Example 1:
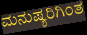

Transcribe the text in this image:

ಮನುಷ್ಯರಿಗಿಂತ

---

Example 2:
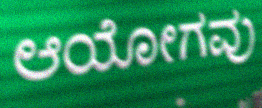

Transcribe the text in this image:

ಆಯೋಗವು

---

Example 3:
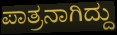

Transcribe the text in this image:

ಪಾತ್ರನಾಗಿದ್ದು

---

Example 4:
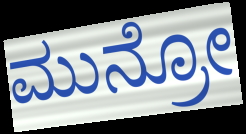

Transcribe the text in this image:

ಮುನ್ರೋ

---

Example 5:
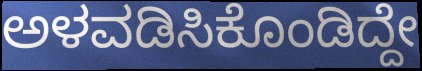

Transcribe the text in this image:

ಅಳವಡಿಸಿಕೊಂಡಿದ್ದೇ